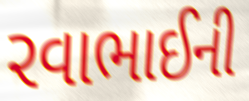
રવાભાઈની